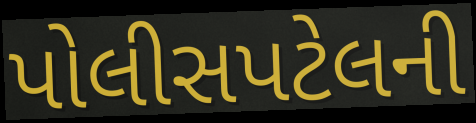
પોલીસપટેલની